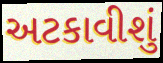
અટકાવીશું